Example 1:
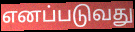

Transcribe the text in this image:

எனப்படுவது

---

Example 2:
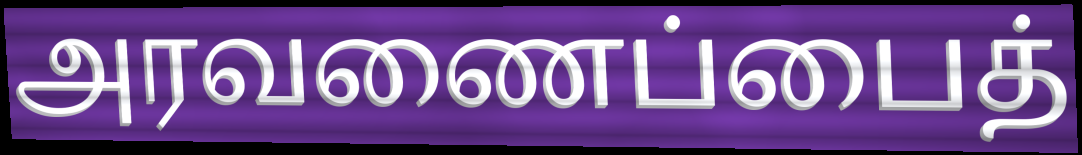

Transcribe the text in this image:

அரவணைப்பைத்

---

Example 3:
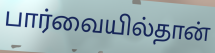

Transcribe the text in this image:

பார்வையில்தான்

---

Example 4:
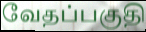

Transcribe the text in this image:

வேதப்பகுதி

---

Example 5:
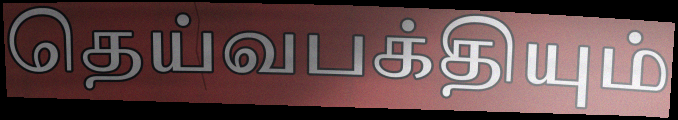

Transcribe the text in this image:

தெய்வபக்தியும்